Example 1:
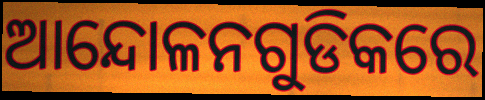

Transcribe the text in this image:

ଆନ୍ଦୋଳନଗୁଡିକରେ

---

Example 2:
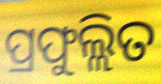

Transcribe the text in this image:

ପ୍ରଫୁଲ୍ଲିତ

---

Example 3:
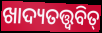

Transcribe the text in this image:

ଖାଦ୍ୟତତ୍ତ୍ୱବିତ୍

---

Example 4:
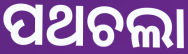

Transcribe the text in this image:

ପଥଚଲା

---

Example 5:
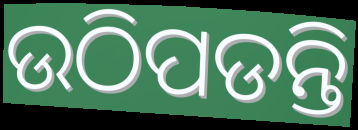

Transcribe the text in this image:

ଉଠିପଡନ୍ତି